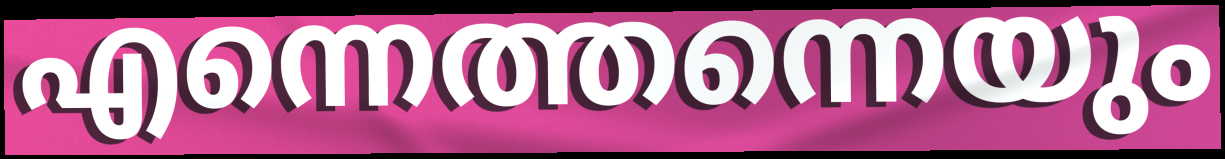
എന്നെത്തന്നെയും